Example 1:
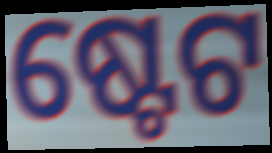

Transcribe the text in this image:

ଷ୍ଟେଟ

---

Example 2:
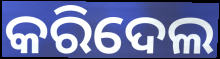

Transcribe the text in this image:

କରିଦେଲ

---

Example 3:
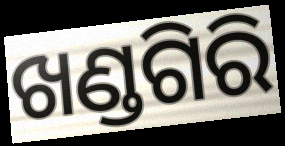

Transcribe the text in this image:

ଖଣ୍ଡଗିରି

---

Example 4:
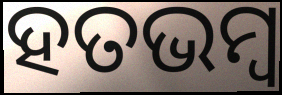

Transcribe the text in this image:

ହତଭମ୍ୱ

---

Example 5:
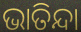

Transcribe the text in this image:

ଭାତିନ୍ଦା